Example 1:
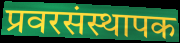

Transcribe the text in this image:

प्रवरसंस्थापक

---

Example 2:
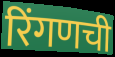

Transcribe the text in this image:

रिंगणची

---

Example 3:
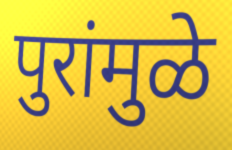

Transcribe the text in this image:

पुरांमुळे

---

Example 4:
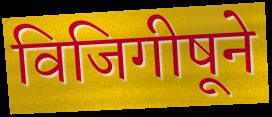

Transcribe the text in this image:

विजिगीषूने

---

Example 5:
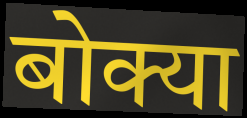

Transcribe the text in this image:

बोक्या